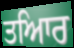
ਤਆਿਰ